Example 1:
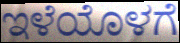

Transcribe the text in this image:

ಇಳೆಯೊಳಗೆ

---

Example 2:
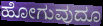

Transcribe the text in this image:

ಹೋಗುವುದೂ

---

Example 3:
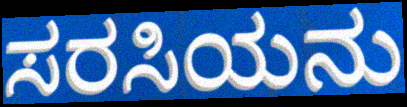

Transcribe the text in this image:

ಸರಸಿಯನು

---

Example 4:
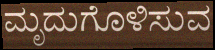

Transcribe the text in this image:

ಮೃದುಗೊಳಿಸುವ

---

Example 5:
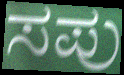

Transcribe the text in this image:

ಸಪು